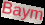
Baym